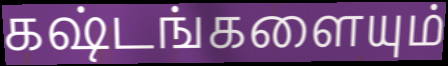
கஷ்டங்களையும்